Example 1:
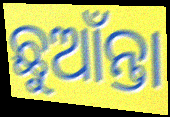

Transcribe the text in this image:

ଛୁଆଁନ୍ତା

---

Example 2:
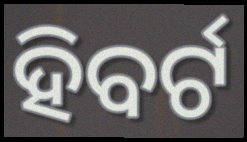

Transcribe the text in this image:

ହିବର୍ଟ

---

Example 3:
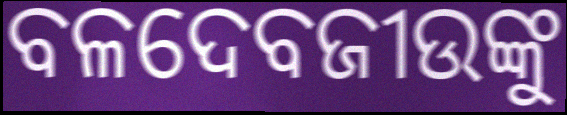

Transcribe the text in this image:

ବଳଦେବଜୀଉଙ୍କୁ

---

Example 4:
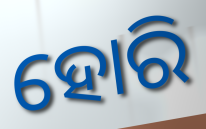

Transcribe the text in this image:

ହୋରି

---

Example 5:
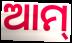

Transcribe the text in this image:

ଆମ୍